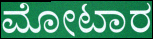
ಮೋಟಾರ